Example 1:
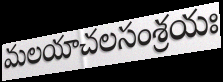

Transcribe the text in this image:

మలయాచలసంశ్రయః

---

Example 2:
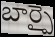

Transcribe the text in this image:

బార్పై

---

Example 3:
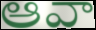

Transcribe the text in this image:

ఆవా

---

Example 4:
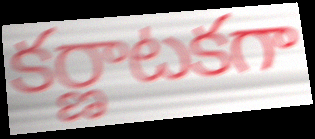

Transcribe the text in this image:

కర్ణాటకగా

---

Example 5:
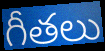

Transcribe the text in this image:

గీతలు